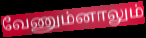
வேணும்னாலும்